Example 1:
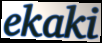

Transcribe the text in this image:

ekaki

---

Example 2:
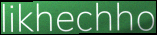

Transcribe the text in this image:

likhechho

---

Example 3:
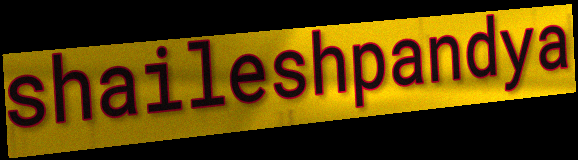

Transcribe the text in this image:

shaileshpandya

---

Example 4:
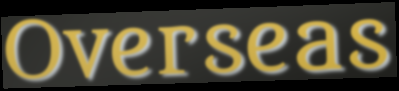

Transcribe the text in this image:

Overseas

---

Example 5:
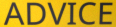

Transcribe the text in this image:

ADVICE